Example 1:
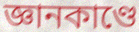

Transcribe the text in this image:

জ্ঞানকাণ্ডে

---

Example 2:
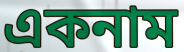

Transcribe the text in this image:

একনাম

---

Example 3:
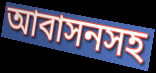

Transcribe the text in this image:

আবাসনসহ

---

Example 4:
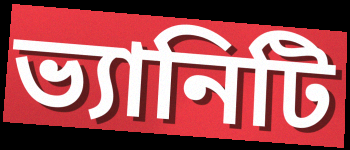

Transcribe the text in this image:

ভ্যানিটি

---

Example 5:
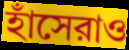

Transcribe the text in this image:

হাঁসেরাও